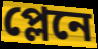
প্লেনে